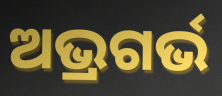
ଅଭ୍ରଗର୍ଭ